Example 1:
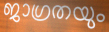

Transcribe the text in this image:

ജാഗ്രതയും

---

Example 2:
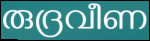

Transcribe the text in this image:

രുദ്രവീണ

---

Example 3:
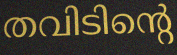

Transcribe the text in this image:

തവിടിന്റെ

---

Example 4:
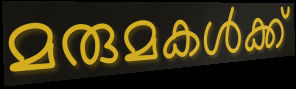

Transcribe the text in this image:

മരുമകൾക്ക്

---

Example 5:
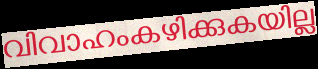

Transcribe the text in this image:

വിവാഹംകഴിക്കുകയില്ല